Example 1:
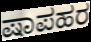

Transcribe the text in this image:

ಷಾಪಹರ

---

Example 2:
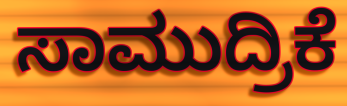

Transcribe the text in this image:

ಸಾಮುದ್ರಿಕೆ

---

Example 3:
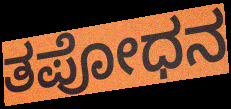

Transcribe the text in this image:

ತಪೋಧನ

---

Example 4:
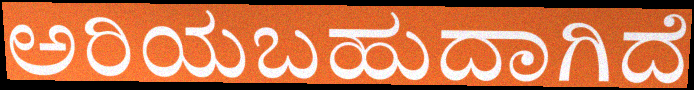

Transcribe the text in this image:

ಅರಿಯಬಹುದಾಗಿದೆ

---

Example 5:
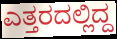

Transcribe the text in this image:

ಎತ್ತರದಲ್ಲಿದ್ದ